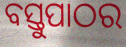
ବସ୍ତୁପାଠର